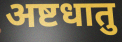
अष्टधातु